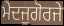
ਮੇਦਜੁਗੋਰਜੇ